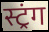
स्ट्रंग